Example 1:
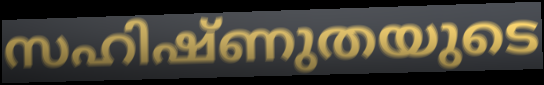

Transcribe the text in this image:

സഹിഷ്ണുതയുടെ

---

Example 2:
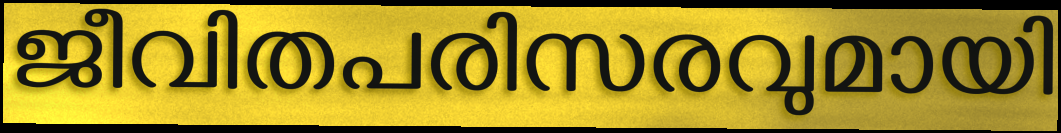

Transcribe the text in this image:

ജീവിതപരിസരവുമായി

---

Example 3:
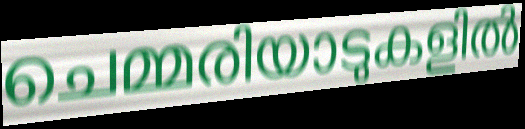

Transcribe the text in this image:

ചെമ്മരിയാടുകളിൽ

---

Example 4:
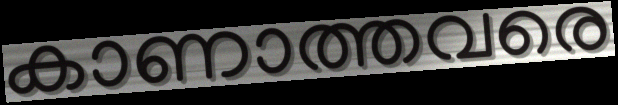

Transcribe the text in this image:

കാണാത്തവരെ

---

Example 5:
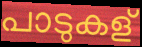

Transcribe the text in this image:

പാടുകള്